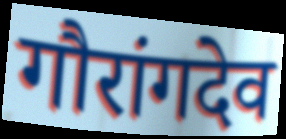
गौरांगदेव